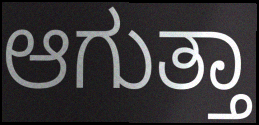
ಆಗುತ್ತಾ